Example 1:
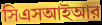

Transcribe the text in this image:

সিএসআইআর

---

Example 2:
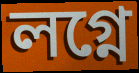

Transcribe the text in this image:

লগ্নে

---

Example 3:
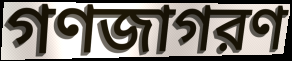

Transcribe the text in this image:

গণজাগরণ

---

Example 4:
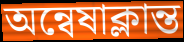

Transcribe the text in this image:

অন্বেষাক্লান্ত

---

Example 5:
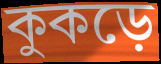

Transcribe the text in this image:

কুকড়ে